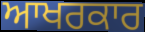
ਆਖਰਕਾਰ